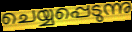
ചെയ്യപ്പെടുന്നു